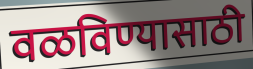
वळविण्यासाठी